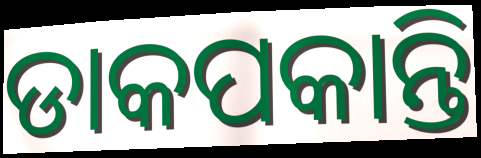
ଡାକପକାନ୍ତି